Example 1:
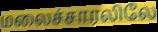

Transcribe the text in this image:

மலைச்சாரலிலே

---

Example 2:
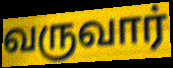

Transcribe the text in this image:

வருவார்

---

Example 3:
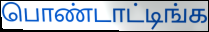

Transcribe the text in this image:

பொண்டாட்டிங்க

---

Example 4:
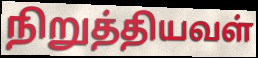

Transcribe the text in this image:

நிறுத்தியவள்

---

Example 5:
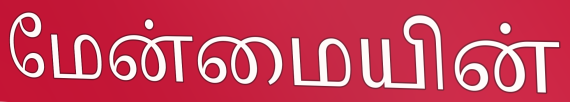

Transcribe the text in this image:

மேன்மையின்